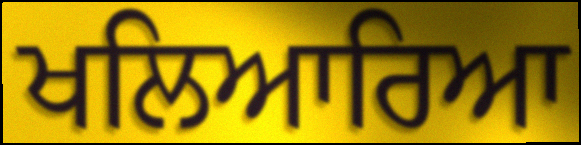
ਖਲਿਆਰਿਆ